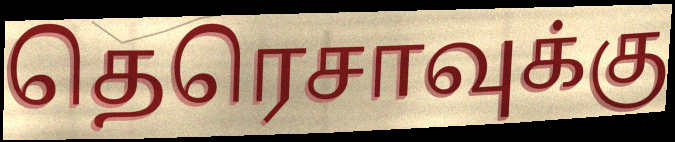
தெரெசாவுக்கு